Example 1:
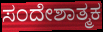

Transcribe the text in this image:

ಸಂದೇಶಾತ್ಮಕ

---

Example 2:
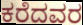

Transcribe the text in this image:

ಕರೆದವರ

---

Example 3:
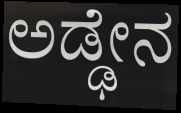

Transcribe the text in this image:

ಅಡ್ಢೇನ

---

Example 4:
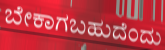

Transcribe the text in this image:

ಬೇಕಾಗಬಹುದೆಂದು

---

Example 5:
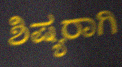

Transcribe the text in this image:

ಶಿಷ್ಯರಾಗಿ